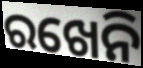
ରଖେନି